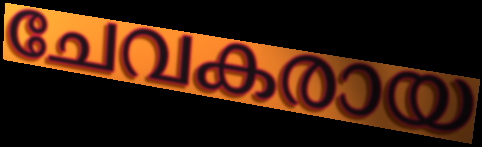
ചേവകരായ